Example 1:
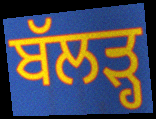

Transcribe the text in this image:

ਬੱਲੜ੍ਹ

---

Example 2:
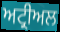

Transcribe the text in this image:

ਅਟ੍ਰੀਅਲ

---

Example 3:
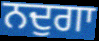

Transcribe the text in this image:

ਨਦੁਗਾ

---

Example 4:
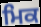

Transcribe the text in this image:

ਮਿਕ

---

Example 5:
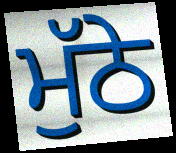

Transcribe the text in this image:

ਮੁੱਠੇ